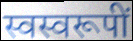
स्वस्वरूपीं